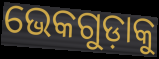
ଭେକଗୁଡ଼ାକୁ